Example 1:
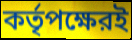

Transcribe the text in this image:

কর্তৃপক্ষেরই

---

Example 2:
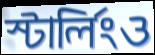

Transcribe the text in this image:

স্টার্লিংও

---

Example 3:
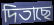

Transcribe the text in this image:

দিতাছে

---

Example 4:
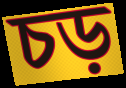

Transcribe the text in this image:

চড়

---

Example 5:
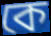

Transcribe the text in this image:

কে